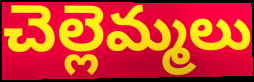
చెల్లెమ్మలు